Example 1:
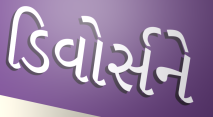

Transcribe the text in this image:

ડિવોર્સને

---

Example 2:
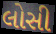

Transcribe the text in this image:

લોસી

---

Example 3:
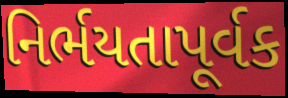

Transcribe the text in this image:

નિર્ભયતાપૂર્વક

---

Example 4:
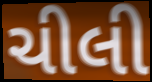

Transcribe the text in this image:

ચીલી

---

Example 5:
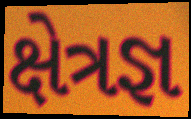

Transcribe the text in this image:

ક્ષેત્રજ્ઞ